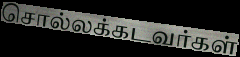
சொல்லக்கடவர்கள்